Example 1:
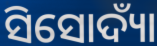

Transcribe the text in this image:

ସିସୋଦ୍ୟାଁ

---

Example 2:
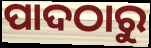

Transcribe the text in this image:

ପାଦଠାରୁ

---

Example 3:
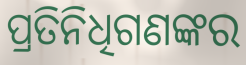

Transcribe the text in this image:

ପ୍ରତିନିଧିଗଣଙ୍କର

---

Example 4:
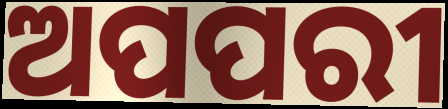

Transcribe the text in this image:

ଅପପରୀ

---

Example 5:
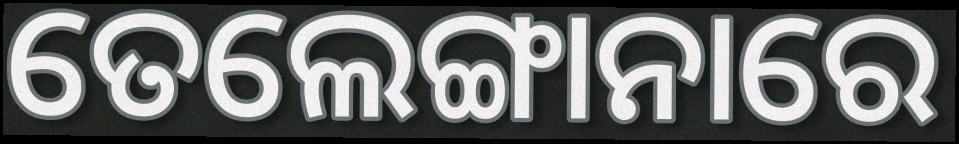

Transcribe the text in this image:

ତେଲେଙ୍ଗାନାରେ